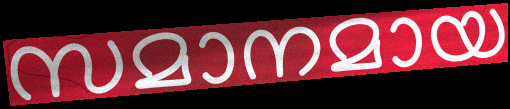
സമാനമായ